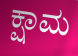
ಕ್ಷಾಮ